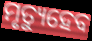
ମୃତ୍ୟୁହେବ